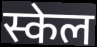
स्केल